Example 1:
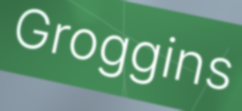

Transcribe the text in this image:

Groggins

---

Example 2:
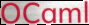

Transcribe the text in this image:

OCaml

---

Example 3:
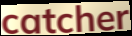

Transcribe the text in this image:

catcher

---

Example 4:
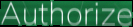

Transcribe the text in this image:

Authorize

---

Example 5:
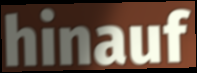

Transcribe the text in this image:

hinauf